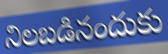
నిలబడినందుకు